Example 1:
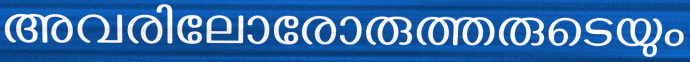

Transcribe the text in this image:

അവരിലോരോരുത്തരുടെയും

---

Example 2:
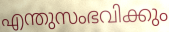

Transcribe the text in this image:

എന്തുസംഭവിക്കും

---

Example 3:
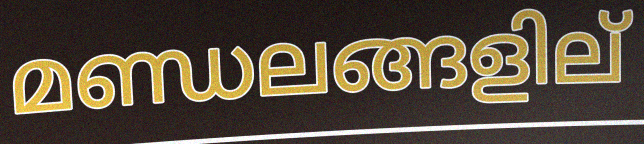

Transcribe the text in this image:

മണ്ഡലങ്ങളില്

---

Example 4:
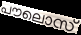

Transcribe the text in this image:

പൗലൊസ്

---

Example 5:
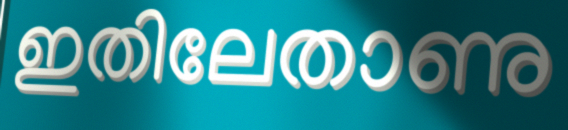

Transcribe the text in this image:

ഇതിലേതാണു